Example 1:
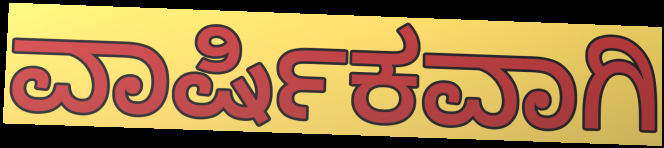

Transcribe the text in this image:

ವಾರ್ಷಿಕವಾಗಿ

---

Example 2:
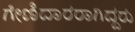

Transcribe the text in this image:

ಗೇಣಿದಾರರಾಗಿದ್ದರು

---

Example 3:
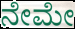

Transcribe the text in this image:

ನೇಮೇ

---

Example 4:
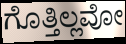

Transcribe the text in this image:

ಗೊತ್ತಿಲ್ಲವೋ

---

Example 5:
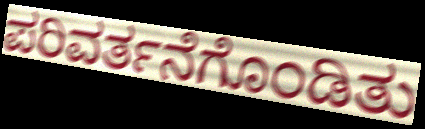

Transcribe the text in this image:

ಪರಿವರ್ತನೆಗೊಂಡಿತು